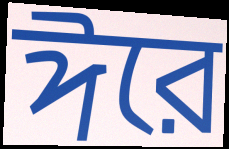
ঈরে